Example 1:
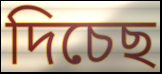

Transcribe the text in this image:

দিচেছ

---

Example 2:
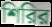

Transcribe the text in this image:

শিরির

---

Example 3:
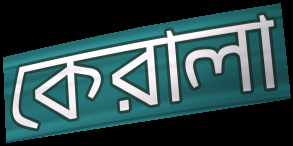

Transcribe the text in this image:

কেরালা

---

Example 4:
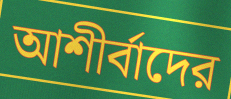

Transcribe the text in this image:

আশীর্বাদের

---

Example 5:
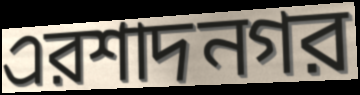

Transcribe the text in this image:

এরশাদনগর